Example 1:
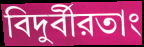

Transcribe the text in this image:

বিদুর্বীরতাং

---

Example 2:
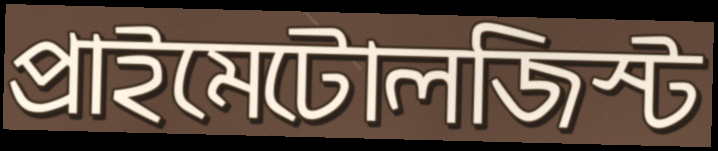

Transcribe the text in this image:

প্রাইমেটোলজিস্ট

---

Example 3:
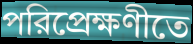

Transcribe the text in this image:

পরিপ্রেক্ষণীতে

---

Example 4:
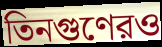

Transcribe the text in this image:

তিনগুণেরও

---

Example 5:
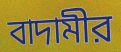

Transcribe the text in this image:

বাদামীর